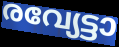
രവ്യേട്ടാ